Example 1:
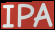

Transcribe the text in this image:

IPA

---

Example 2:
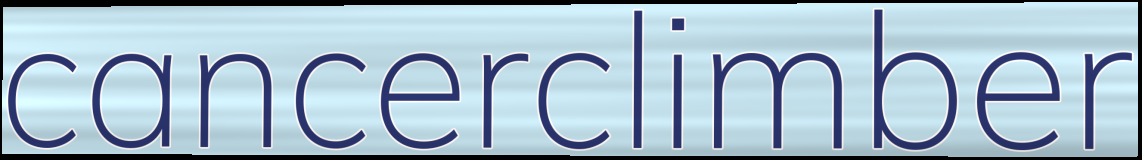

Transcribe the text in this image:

cancerclimber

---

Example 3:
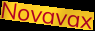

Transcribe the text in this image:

Novavax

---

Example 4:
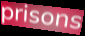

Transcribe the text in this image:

prisons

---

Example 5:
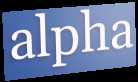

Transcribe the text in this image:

alpha